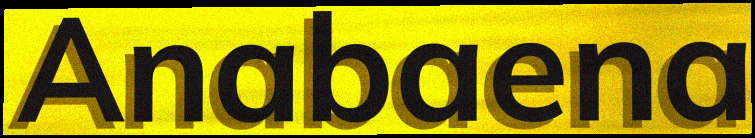
Anabaena